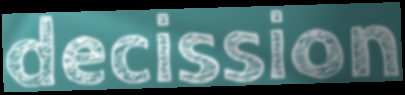
decission